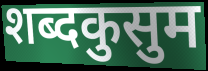
शब्दकुसुम